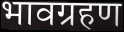
भावग्रहण